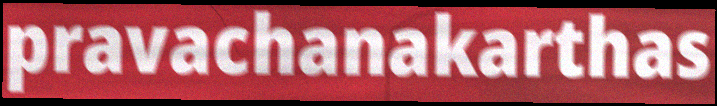
pravachanakarthas